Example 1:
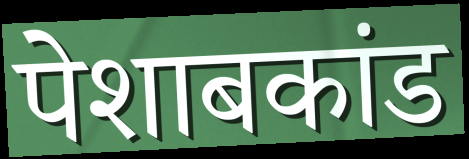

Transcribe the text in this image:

पेशाबकांड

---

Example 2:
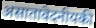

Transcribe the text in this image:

असातावेदनीयकी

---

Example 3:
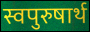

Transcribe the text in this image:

स्वपुरुषार्थ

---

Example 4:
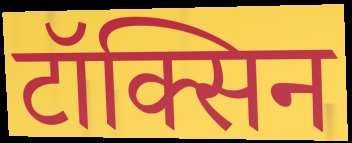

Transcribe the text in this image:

टॉक्सिन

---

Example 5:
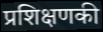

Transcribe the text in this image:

प्रशिक्षणकी